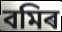
বমিৰ